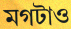
মগটাও